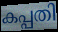
കപ്പതി